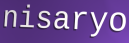
nisaryo